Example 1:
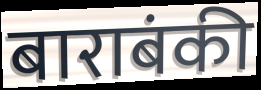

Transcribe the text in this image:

बाराबंकी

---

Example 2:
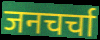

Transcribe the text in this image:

जनचर्चा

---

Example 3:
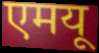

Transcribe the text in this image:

एमयू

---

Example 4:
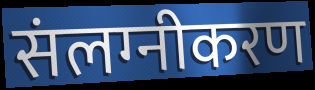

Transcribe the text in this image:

संलग्‍नीकरण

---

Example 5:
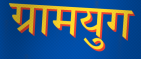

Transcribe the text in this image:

ग्रामयुग